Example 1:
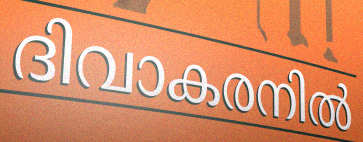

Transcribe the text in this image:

ദിവാകരനിൽ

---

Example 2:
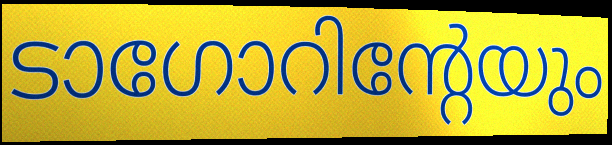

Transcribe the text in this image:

ടാഗോറിന്റേയും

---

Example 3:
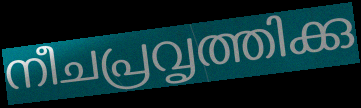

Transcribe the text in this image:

നീചപ്രവൃത്തിക്കു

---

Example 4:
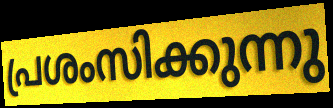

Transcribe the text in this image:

പ്രശംസിക്കുന്നു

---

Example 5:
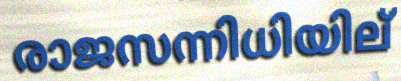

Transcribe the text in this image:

രാജസന്നിധിയില്